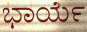
ಭಾರ್ಯೆ